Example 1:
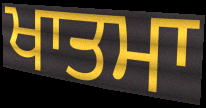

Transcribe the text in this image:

ਖਾਤਮਾ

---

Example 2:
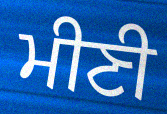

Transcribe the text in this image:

ਮੀਣੀ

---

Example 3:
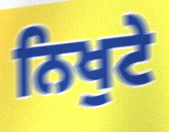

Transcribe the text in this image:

ਨਿਖੁਟੇ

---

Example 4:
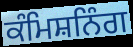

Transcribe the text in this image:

ਕੰਮਿਸ਼ਨਿੰਗ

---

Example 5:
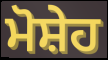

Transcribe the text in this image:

ਮੋਸ਼ੇਹ